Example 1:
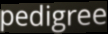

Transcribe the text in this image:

pedigree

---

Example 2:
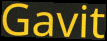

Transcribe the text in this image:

Gavit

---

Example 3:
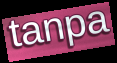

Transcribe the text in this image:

tanpa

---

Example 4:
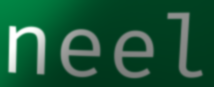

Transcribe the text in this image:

neel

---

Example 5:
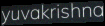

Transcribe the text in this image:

yuvakrishna